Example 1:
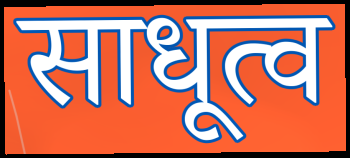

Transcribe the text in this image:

साधूत्व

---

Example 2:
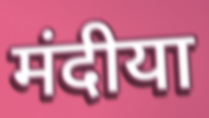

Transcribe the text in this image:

मंदीया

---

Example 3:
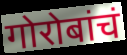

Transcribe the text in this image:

गोरोबांचं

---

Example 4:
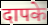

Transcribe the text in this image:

दापके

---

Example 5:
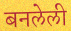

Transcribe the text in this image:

बनलेली